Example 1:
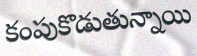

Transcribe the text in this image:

కంపుకొడుతున్నాయి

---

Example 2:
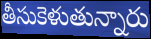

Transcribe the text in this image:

తీసుకెళుతున్నారు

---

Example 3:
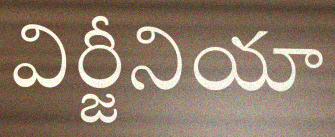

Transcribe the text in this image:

విర్జీనియా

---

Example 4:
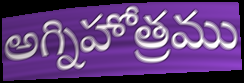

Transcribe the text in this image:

అగ్నిహోత్రము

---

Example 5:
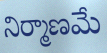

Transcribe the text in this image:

నిర్మాణమే